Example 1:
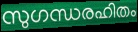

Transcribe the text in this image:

സുഗന്ധരഹിതം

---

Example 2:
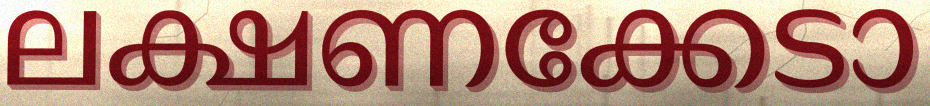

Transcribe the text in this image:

ലക്ഷണക്കേടാ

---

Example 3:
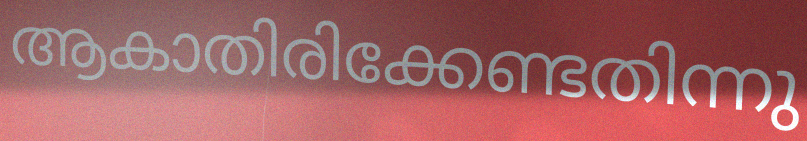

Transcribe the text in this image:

ആകാതിരിക്കേണ്ടതിന്നു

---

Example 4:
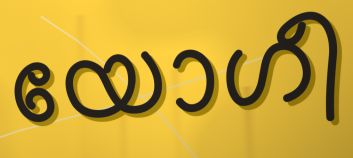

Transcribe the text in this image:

യോഗീ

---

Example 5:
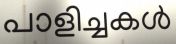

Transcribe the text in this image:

പാളിച്ചകൾ